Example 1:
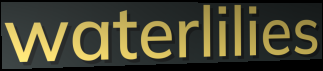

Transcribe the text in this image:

waterlilies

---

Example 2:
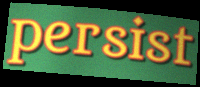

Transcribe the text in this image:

persist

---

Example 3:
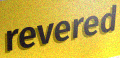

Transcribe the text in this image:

revered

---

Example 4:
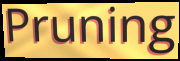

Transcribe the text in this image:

Pruning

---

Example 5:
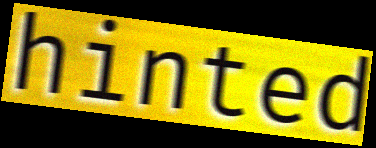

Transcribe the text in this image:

hinted